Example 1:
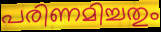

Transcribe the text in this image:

പരിണമിച്ചതും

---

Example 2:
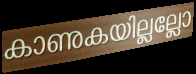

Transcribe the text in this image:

കാണുകയില്ലല്ലോ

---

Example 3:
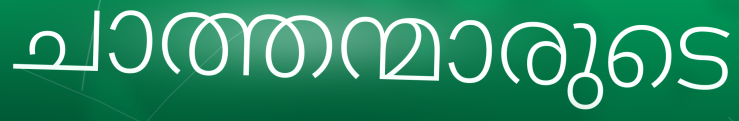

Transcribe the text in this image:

ചാത്തന്മാരുടെ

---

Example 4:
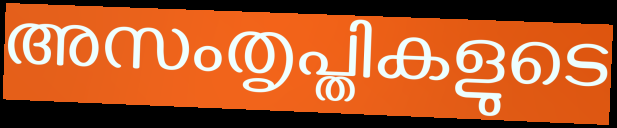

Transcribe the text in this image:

അസംതൃപ്തികളുടെ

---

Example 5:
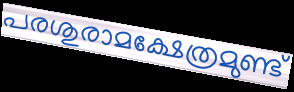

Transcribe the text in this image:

പരശുരാമക്ഷേത്രമുണ്ട്